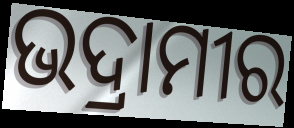
ଭଦ୍ରାମୀର